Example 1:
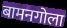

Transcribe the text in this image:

बामनगोला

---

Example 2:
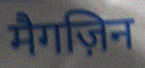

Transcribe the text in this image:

मैगज़िन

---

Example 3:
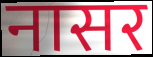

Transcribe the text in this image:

नासर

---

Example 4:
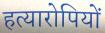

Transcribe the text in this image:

हत्यारोपियों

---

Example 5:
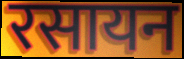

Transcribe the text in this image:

रसायन